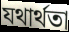
যথাৰ্থতা